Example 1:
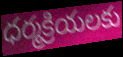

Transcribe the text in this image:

ధర్మక్రియలకు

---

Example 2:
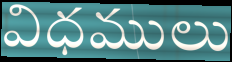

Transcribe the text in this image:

విధములు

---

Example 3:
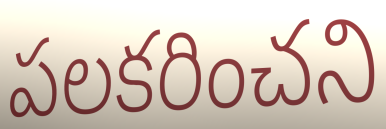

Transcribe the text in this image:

పలకరించని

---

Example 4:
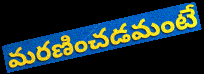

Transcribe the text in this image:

మరణించడమంటే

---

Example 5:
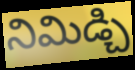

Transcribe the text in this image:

నిమిడ్చి